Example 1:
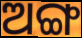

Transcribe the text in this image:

ଅଙ୍ଗ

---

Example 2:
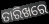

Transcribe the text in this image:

ତାରିଖରେ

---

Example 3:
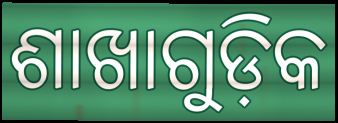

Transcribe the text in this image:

ଶାଖାଗୁଡ଼ିକ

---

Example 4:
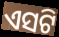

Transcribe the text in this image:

ଏସଟି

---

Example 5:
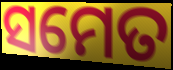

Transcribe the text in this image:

ସମେତ